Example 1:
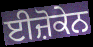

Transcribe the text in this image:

ਈਜ਼ੋਕੇਨ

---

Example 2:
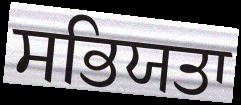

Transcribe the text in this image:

ਸਭਿਯਤਾ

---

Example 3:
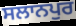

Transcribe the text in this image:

ਸਲਾਨਪੁਰ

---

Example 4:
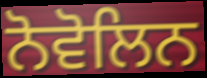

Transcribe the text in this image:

ਨੋਵੋਲਿਨ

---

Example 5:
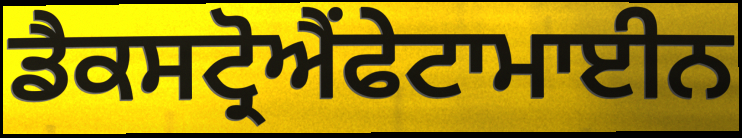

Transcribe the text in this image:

ਡੈਕਸਟ੍ਰੋਐਂਫੇਟਾਮਾਈਨ